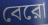
বেরো